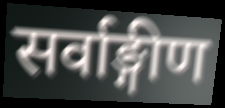
सर्वाङ्गीण